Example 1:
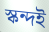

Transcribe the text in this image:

স্কন্দই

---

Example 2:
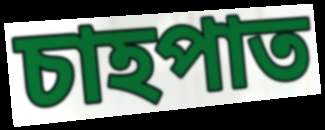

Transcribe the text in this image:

চাহপাত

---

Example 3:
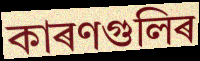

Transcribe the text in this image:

কাৰণগুলিৰ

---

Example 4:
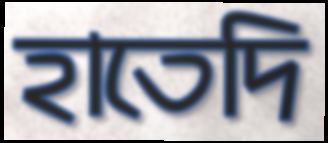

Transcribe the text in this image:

হাতেদি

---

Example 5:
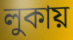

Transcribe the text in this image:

লুকায়